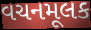
વચનમૂલક